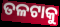
ତଳଟାକୁ